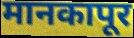
मानकापूर